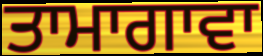
ਤਾਮਾਗਾਵਾ